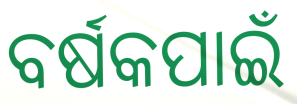
ବର୍ଷକପାଇଁ